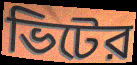
ভিটের